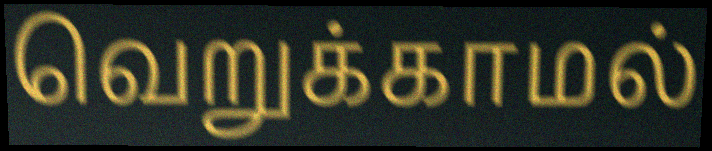
வெறுக்காமல்